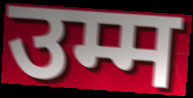
उम्म